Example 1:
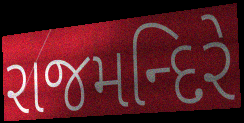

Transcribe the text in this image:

રાજમન્દિરે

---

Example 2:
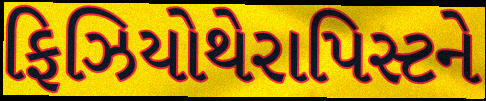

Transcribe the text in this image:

ફિઝિયોથેરાપિસ્ટને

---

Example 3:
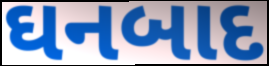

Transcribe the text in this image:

ઘનબાદ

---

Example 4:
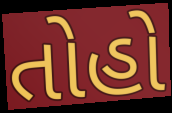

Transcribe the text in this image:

તોહો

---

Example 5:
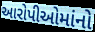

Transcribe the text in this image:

આરોપીઓમાંનો